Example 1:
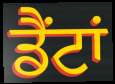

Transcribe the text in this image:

ਡੈਂਟਾਂ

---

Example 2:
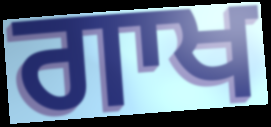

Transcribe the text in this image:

ਗਾਖ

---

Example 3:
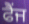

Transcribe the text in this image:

ਫੈਂਜ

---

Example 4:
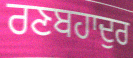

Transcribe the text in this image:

ਰਣਬਹਾਦੁਰ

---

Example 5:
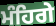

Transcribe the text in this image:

ਮੰਹਿਗੇ